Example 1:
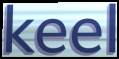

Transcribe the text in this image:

keel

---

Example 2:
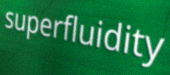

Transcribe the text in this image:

superfluidity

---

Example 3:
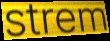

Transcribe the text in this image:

strem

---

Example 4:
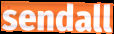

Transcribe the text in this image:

sendall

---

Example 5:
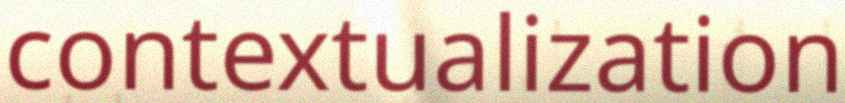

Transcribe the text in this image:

contextualization